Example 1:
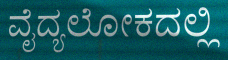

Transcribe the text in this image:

ವೈದ್ಯಲೋಕದಲ್ಲಿ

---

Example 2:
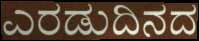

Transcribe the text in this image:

ಎರಡುದಿನದ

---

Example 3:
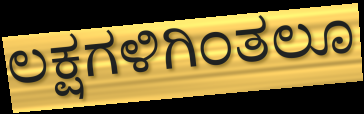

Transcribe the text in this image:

ಲಕ್ಷಗಳಿಗಿಂತಲೂ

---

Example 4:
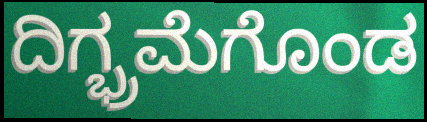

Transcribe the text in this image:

ದಿಗ್ಭ್ರಮೆಗೊಂಡ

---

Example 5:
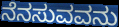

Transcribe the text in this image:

ನೆನಸುವವನು